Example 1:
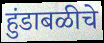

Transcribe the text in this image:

हुंडाबळीचे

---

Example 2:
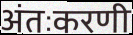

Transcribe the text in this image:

अंतःकरणी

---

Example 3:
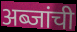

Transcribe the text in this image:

अब्जांची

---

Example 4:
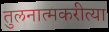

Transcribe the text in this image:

तुलनात्मकरीत्या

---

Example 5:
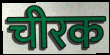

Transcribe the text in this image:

चीरक